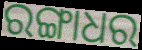
ରଙ୍ଗାଧର